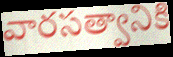
వారసత్వానికి